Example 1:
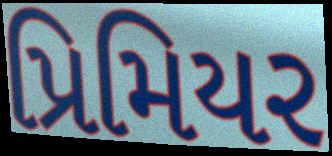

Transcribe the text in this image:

પ્રિમિયર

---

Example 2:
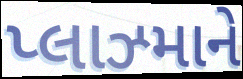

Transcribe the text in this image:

પ્લાઝ્માને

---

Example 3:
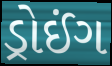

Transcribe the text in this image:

ડ્રોઈંગ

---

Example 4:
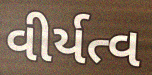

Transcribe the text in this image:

વીર્યત્વ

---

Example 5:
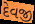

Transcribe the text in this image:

દેવજી